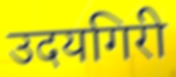
उदयगिरी